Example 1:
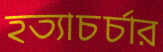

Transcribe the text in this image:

হত্যাচর্চার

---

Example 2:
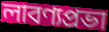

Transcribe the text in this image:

লাবণ্যপ্রভা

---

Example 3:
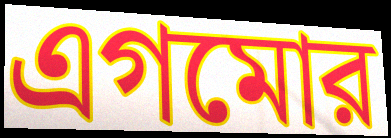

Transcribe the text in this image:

এগমোর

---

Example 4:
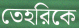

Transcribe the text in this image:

তেহরিকে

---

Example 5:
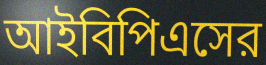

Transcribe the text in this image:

আইবিপিএসের